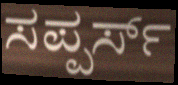
ಸಪ್ಪರ್ಸ್